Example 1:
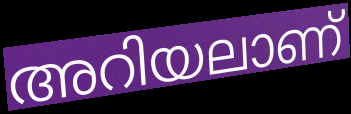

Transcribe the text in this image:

അറിയലാണ്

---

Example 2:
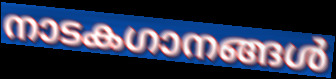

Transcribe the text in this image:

നാടകഗാനങ്ങൾ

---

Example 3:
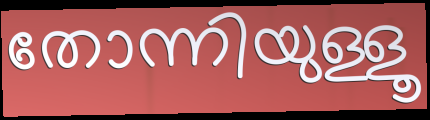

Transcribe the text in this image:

തോന്നിയുള്ളൂ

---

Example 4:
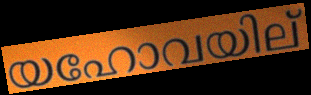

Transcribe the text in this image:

യഹോവയില്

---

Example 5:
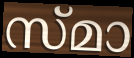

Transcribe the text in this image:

സ്മാ